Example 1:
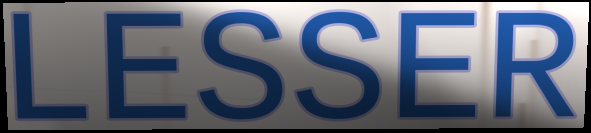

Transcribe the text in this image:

LESSER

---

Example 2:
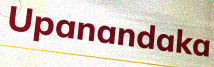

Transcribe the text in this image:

Upanandaka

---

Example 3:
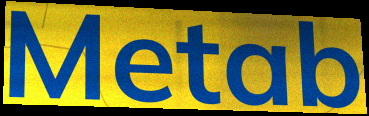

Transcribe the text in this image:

Metab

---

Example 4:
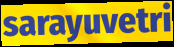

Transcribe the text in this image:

sarayuvetri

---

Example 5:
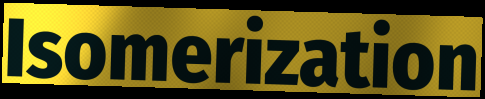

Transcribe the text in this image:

Isomerization